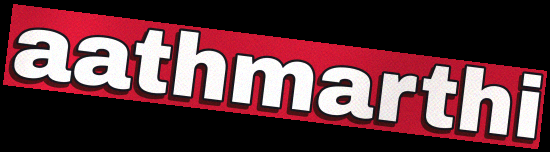
aathmarthi